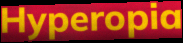
Hyperopia